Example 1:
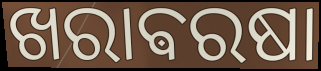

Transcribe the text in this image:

ଖରାଵରଷା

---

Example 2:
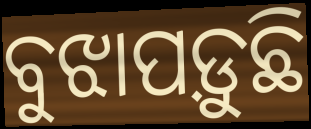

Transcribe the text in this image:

ବୁଝାପଡ଼ୁଛି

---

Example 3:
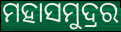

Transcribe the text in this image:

ମହାସମୁଦ୍ରର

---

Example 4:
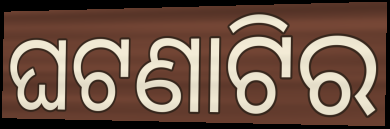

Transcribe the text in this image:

ଘଟଣାଟିର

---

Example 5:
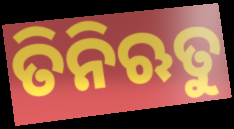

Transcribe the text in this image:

ତିନିଋତୁ